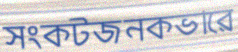
সংকটজনকভাৱে